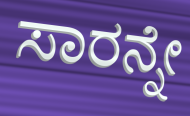
ಸಾರನ್ನೇ